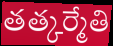
తత్కర్మేతి